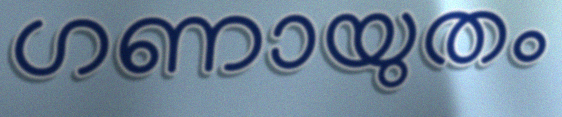
ഗണായുതം